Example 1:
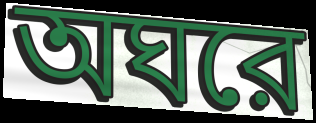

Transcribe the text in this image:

অঘরে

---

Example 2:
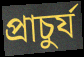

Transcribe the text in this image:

প্রাচুর্য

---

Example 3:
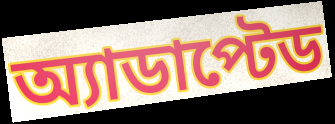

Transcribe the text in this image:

অ্যাডাপ্টেড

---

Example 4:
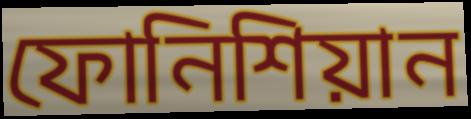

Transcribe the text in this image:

ফোনিশিয়ান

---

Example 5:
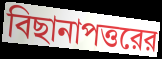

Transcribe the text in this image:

বিছানাপত্তরের